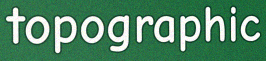
topographic